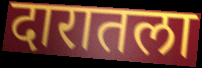
दारातला